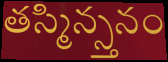
తస్మిన్స్తనం